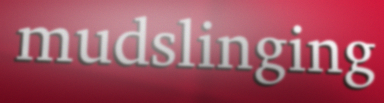
mudslinging